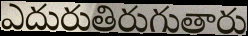
ఎదురుతిరుగుతారు